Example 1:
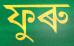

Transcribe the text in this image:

ফুৰু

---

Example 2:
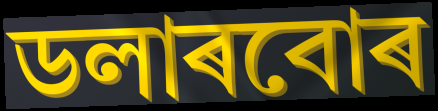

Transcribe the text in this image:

ডলাৰবোৰ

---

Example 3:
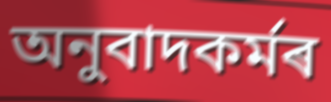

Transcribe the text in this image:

অনুবাদকৰ্মৰ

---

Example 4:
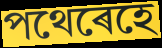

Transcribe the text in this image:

পথেৰেহে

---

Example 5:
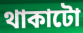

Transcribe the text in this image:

থাকাটো